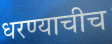
धरण्याचीच